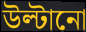
উল্টানো